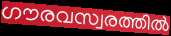
ഗൗരവസ്വരത്തിൽ